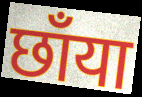
छाँया